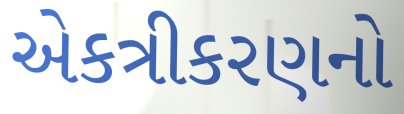
એકત્રીકરણનો